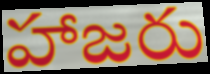
హాజరు